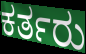
ಕರ್ತರು